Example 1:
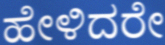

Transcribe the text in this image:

ಹೇಳಿದರೇ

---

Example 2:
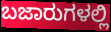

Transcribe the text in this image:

ಬಜಾರುಗಳಲ್ಲಿ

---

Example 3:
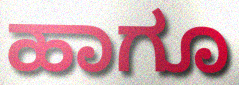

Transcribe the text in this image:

ಹಾಗೂ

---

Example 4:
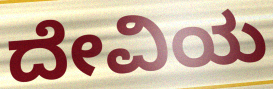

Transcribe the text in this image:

ದೇವಿಯ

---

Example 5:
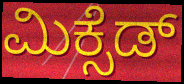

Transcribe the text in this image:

ಮಿಕ್ಸೆಡ್